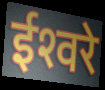
ईश्वरे